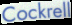
Cockrell